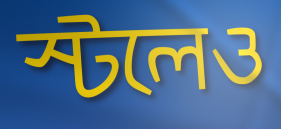
স্টলেও